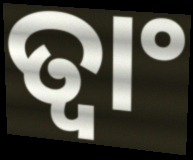
ତ୍ୱାଂ